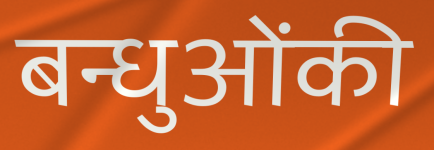
बन्धुओंकी